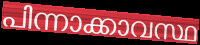
പിന്നാക്കാവസ്ഥ